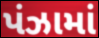
પંઝામાં